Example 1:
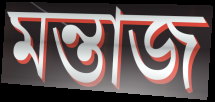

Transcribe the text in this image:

মন্তাজ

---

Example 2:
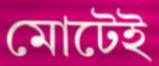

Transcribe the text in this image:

মোটেই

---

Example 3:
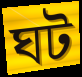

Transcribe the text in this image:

ঘট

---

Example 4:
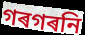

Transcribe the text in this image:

গৰগৰনি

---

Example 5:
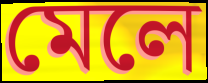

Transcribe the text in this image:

মেলে